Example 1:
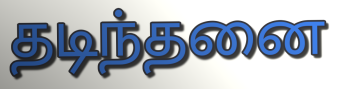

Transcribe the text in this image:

தடிந்தனை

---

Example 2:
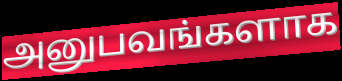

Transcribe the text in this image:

அனுபவங்களாக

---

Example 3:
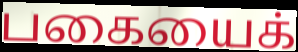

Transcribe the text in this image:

பகையைக்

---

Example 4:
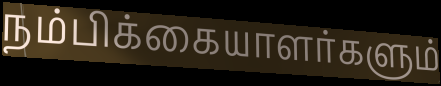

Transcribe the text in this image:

நம்பிக்கையாளர்களும்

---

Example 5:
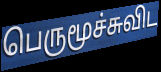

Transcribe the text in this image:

பெருமூச்சுவிட